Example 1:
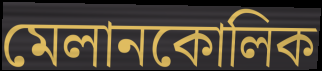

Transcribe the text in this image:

মেলানকোলিক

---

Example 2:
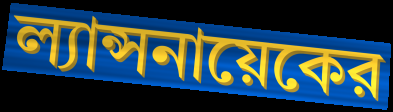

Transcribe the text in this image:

ল্যান্সনায়েকের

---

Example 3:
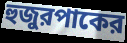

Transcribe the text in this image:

হুজুরপাকের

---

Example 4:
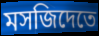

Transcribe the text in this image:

মসজিদেতে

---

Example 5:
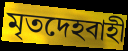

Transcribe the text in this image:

মৃতদেহবাহী